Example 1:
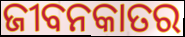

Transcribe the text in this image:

ଜୀବନକାତର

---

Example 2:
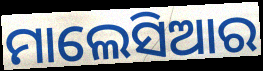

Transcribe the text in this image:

ମାଲେସିଆର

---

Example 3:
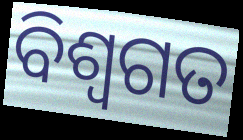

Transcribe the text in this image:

ବିଶ୍ୱଗତ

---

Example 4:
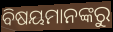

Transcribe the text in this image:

ବିଷୟମାନଙ୍କରୁ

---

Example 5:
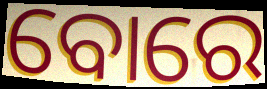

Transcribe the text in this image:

ବୋରେ